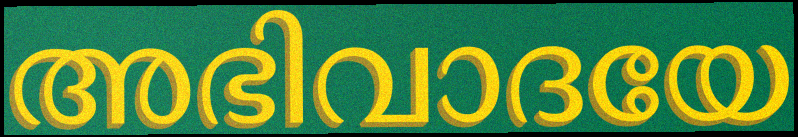
അഭിവാദയേ